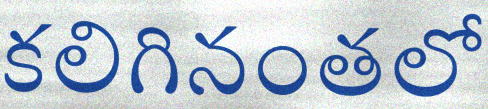
కలిగినంతలో